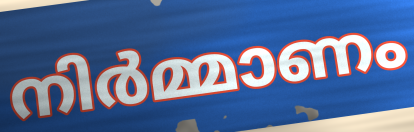
നിർമ്മാണം